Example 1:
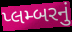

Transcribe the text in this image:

પ્લમ્બરનું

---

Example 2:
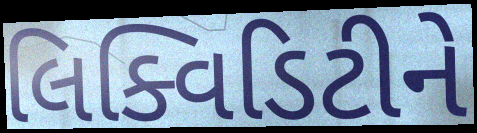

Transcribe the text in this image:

લિક્વિડિટીને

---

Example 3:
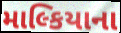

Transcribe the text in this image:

માલ્કિયાના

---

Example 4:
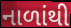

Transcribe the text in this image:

નાળાંથી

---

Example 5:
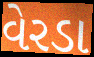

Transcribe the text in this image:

વેરડા